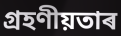
গ্ৰহণীয়তাৰ